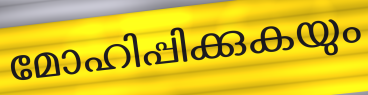
മോഹിപ്പിക്കുകയും